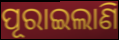
ପୂରାଇଲାଣି